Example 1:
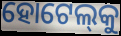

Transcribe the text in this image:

ହୋଟେଲ୍‌କୁ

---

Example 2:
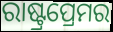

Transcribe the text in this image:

ରାଷ୍ଟ୍ରପ୍ରେମର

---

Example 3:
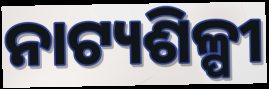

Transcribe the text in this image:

ନାଟ୍ୟଶିଳ୍ପୀ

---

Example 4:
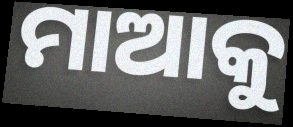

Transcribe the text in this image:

ମାଆକୁ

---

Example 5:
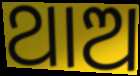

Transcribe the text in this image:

ଥାଅ